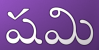
షమి